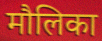
मौलिका